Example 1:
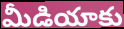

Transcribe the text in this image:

మీడియాకు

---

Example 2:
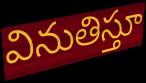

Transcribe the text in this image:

వినుతిస్తూ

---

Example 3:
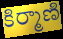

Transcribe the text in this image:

కిర్మాణి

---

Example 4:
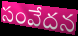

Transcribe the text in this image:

సంవేదన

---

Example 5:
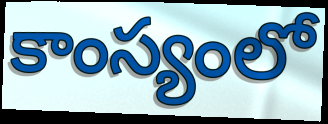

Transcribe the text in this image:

కాంస్యంలో